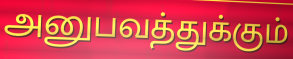
அனுபவத்துக்கும்